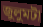
জুলুমটা